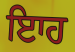
ਇਾਹ